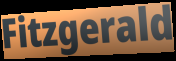
Fitzgerald